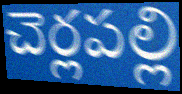
చెర్లపల్లి